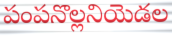
పంపనొల్లనియెడల